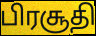
பிரசூதி